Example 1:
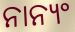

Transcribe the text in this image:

ନାନ୍ୟଂ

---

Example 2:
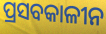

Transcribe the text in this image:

ପ୍ରସବକାଳୀନ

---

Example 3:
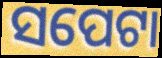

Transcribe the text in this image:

ସପେଟା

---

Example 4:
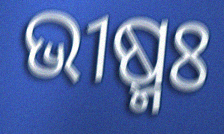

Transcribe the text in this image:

ଭୀଷ୍ମଃ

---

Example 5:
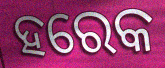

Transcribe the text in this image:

ହରେକ